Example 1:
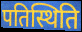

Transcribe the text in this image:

पतिस्थिति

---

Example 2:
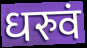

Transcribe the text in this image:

धरुवं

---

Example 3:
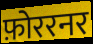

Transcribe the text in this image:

फ़ोररनर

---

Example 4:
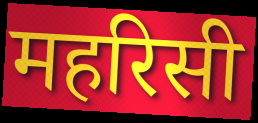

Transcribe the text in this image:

महरिसी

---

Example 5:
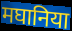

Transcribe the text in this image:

मघानिया